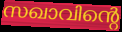
സഖാവിന്റെ